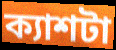
ক্যাশটা